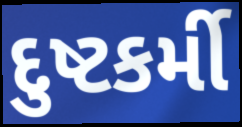
દુષ્ટકર્મી